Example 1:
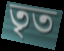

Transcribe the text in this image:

তৃত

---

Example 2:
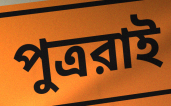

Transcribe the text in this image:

পুত্ররাই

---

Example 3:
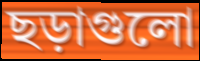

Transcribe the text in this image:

ছড়াগুলো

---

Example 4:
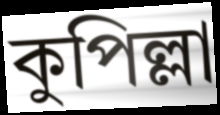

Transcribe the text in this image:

কুপিল্লা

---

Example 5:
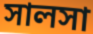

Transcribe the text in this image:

সালসা